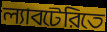
ল্যাবটেরিতে